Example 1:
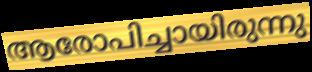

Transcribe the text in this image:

ആരോപിച്ചായിരുന്നു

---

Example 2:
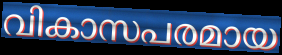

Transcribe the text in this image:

വികാസപരമായ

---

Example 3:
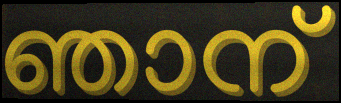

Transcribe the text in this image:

ഞാന്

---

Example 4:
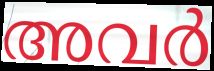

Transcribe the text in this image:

അവർ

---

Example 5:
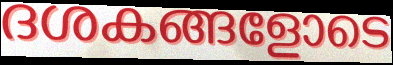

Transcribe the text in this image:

ദശകങ്ങളോടെ